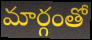
మార్గంతో